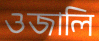
ওজালি